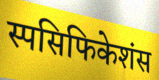
स्पसिफिकेशंस